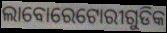
ଲାବୋରେଟୋରୀଗୁଡିକ